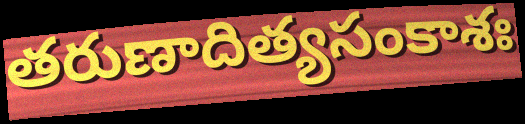
తరుణాదిత్యసంకాశః